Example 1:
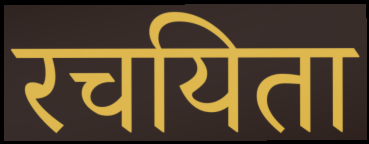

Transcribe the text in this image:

रचयिता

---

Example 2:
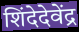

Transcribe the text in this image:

शिंदेदेवेंद्र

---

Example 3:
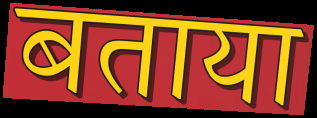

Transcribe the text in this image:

बताया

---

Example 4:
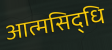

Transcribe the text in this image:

आत्मसिद्धि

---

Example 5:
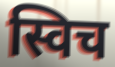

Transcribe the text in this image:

स्विच